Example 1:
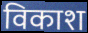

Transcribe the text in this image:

विकाश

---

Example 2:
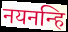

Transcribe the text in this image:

नयनन्हि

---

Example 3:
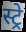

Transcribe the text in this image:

स्ट्रे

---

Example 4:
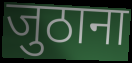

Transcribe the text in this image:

जुठाना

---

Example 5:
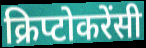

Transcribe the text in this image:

क्रिप्टोकरेंसी